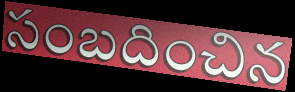
సంబదించిన